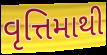
વૃત્તિમાથી